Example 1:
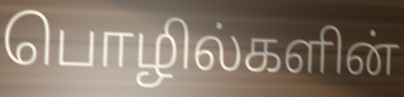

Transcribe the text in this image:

பொழில்களின்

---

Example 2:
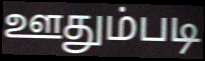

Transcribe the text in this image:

ஊதும்படி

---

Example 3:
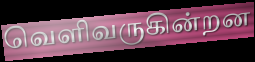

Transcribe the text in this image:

வெளிவருகின்றன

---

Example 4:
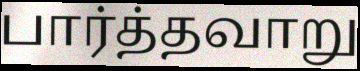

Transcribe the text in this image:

பார்த்தவாறு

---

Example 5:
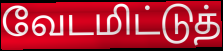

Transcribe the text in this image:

வேடமிட்டுத்